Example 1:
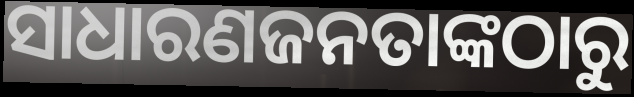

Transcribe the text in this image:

ସାଧାରଣଜନତାଙ୍କଠାରୁ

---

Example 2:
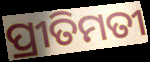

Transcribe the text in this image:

ପ୍ରୀତିମତୀ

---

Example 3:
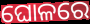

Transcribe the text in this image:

ଘୋଳରେ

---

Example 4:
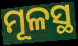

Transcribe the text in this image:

ମୂଳସ୍ଥ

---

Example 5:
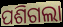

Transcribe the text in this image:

ପଶିଗଲା